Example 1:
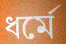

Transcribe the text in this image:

ধর্মে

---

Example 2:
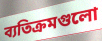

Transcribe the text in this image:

ব্যতিক্রমগুলো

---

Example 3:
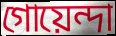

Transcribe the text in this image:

গোয়েন্দা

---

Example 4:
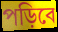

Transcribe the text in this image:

পড়িবে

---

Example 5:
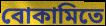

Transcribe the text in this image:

বোকামিতে